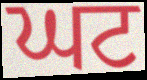
ਘਟ